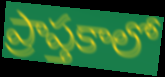
ప్రాప్తకాలో